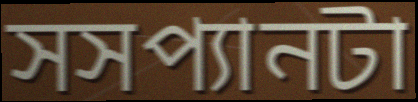
সসপ্যানটা